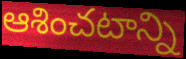
ఆశించటాన్ని